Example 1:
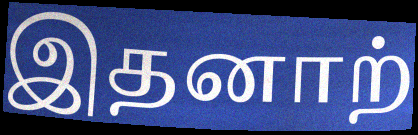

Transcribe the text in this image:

இதனாற்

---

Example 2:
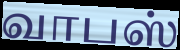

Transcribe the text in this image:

வாபஸ்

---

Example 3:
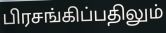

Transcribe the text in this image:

பிரசங்கிப்பதிலும்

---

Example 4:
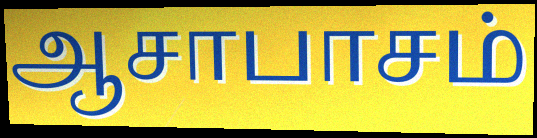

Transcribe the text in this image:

ஆசாபாசம்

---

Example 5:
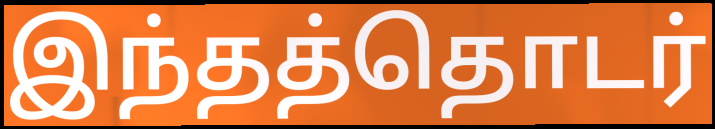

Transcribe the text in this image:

இந்தத்தொடர்